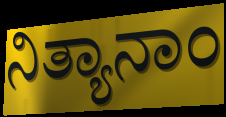
ನಿತ್ಯಾನಾಂ